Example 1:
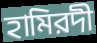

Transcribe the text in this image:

হামিরদী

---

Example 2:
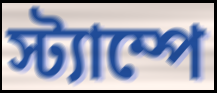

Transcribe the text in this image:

স্ট্যাম্পে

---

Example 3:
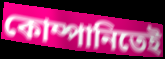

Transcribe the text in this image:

কোম্পানিতেই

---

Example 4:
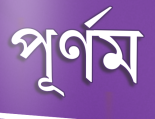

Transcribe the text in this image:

পূর্ণম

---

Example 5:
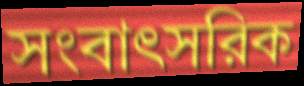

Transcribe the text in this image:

সংবাৎসরিক